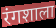
रंगशाला